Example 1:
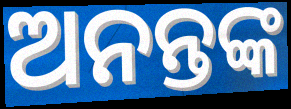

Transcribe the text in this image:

ଅନନ୍ତଙ୍କ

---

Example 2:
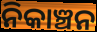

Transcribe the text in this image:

ନିକାଞ୍ଚନ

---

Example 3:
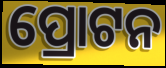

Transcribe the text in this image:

ପ୍ରୋଟନ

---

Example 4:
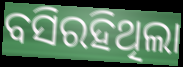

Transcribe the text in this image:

ବସିରହିଥିଲା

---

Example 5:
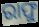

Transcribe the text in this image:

ରାଫୁ